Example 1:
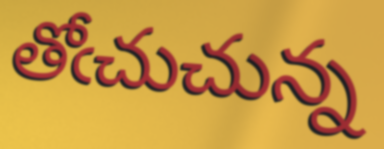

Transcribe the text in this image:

తోఁచుచున్న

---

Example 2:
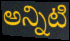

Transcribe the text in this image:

అన్నిటి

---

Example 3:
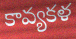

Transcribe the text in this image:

కావ్యకళ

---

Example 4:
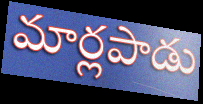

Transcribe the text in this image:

మార్లపాడు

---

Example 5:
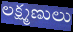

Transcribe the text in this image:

లక్ష్మణులు